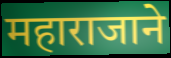
महाराजाने